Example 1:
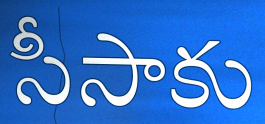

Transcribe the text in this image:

సీసాకు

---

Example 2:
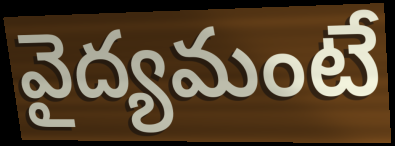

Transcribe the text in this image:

వైద్యమంటే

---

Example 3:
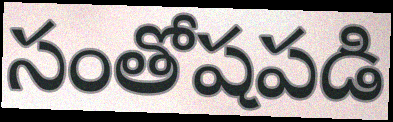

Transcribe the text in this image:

సంతోషపడి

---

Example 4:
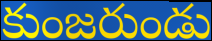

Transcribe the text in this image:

కుంజరుండు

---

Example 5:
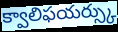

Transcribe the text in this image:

క్వాలిఫయర్స్కు